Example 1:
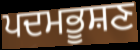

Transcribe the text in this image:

ਪਦਮਭੂਸ਼ਣ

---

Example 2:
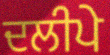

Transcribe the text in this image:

ਦਲੀਪੇ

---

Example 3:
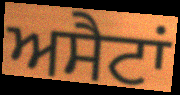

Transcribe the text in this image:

ਅਸੈਟਾਂ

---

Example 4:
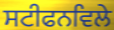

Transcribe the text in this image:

ਸਟੀਫਨਵਿਲੇ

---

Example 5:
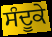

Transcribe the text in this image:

ਸੰਦੂਕੇ